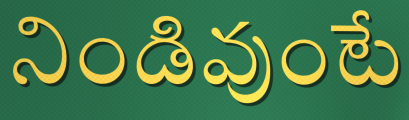
నిండివుంటే